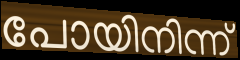
പോയിനിന്ന്